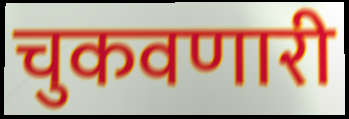
चुकवणारी